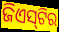
ଜିଏସ୍‌ଟିର